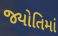
જ્યોતિમાં